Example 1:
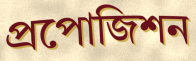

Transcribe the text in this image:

প্রপোজিশন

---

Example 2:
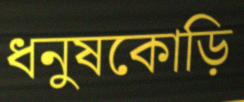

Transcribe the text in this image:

ধনুষকোড়ি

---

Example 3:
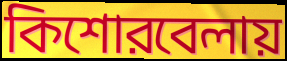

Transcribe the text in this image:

কিশোরবেলায়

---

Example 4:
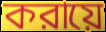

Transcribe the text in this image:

করায়ে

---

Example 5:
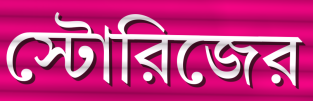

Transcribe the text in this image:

স্টোরিজের